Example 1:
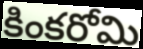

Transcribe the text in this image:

కింకరోమి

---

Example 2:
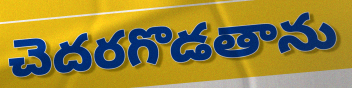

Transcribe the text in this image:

చెదరగొడతాను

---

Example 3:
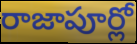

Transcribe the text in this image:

రాజాపూర్లో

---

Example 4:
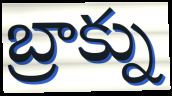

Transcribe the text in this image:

బ్రాక్ను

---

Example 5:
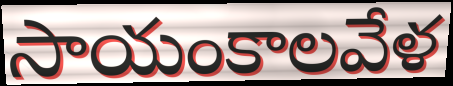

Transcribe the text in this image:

సాయంకాలవేళ